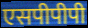
एसपीपीपी